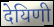
देयिणी